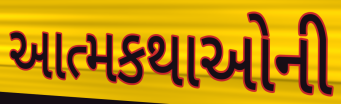
આત્મકથાઓની